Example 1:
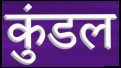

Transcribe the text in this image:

कुंडल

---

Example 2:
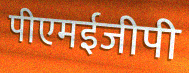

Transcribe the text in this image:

पीएमईजीपी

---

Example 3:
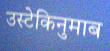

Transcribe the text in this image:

उस्टेकिनुमाब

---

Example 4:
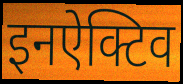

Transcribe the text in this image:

इनऐक्टिव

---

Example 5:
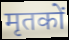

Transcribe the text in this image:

मृतकों